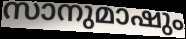
സാനുമാഷും